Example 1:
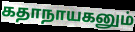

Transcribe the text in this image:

கதாநாயகனும்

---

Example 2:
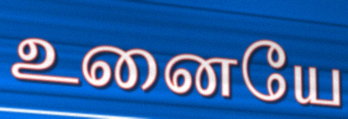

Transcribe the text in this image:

உனையே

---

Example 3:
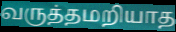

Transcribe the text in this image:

வருத்தமறியாத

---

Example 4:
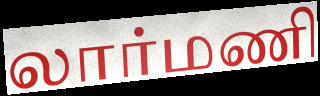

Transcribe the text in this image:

லார்மணி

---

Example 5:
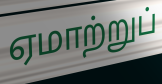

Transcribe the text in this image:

ஏமாற்றுப்